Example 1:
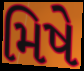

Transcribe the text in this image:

મિષે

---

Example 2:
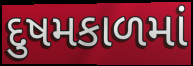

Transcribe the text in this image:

દુષમકાળમાં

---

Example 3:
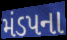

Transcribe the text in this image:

મંડપના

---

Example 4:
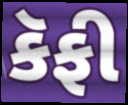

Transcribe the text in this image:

કૅફી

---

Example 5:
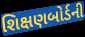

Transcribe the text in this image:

શિક્ષણબોર્ડની